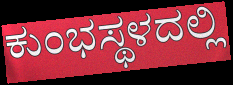
ಕುಂಭಸ್ಥಳದಲ್ಲಿ